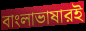
বাংলাভাষারই